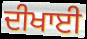
ਦੀਖਾਈ